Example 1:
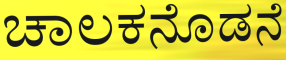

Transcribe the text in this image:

ಚಾಲಕನೊಡನೆ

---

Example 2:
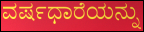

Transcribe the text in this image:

ವರ್ಷಧಾರೆಯನ್ನು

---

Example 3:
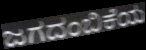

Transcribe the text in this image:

ಜಗದಂಬಿಕೆಯ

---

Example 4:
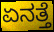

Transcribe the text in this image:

ಏನತ್ತೆ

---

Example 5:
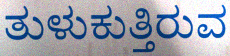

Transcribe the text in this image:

ತುಳುಕುತ್ತಿರುವ